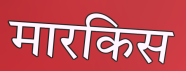
मारकिस